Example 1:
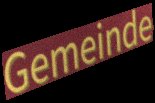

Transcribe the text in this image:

Gemeinde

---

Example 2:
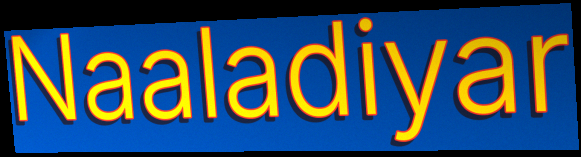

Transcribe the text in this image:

Naaladiyar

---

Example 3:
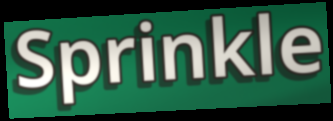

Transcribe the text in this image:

Sprinkle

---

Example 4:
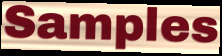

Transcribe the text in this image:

Samples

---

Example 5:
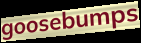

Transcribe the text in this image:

goosebumps